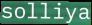
solliya